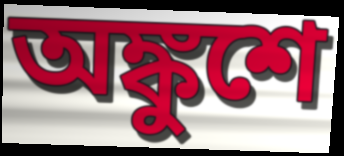
অঙ্কুশে